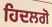
ਹਿਦਲਗੋ